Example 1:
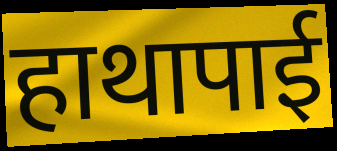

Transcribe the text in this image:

हाथापाई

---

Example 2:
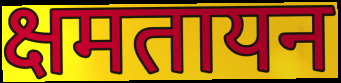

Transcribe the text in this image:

क्षमतायन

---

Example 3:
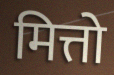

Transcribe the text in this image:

मित्तो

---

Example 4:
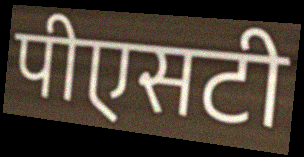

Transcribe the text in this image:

पीएसटी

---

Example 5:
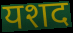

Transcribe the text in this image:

यशद